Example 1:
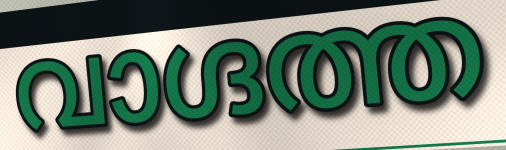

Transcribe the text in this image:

വാഗ്ദത്ത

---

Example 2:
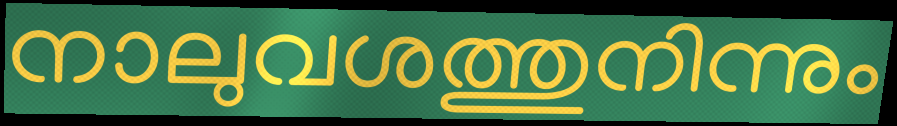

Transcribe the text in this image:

നാലുവശത്തുനിന്നും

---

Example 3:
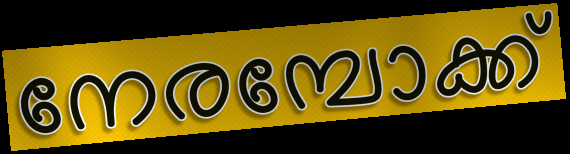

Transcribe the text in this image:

നേരമ്പോക്ക്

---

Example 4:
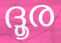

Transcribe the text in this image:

ദൂര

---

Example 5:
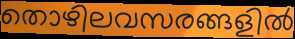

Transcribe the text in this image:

തൊഴിലവസരങ്ങളിൽ